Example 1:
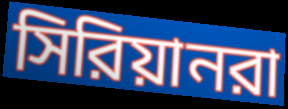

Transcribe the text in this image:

সিরিয়ানরা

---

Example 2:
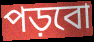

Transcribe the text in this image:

পড়বো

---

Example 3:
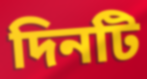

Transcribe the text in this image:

দিনটি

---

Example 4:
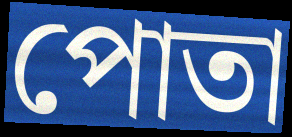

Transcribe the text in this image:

পোতা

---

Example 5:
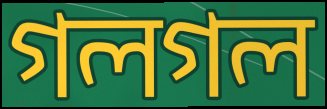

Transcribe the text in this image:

গলগল